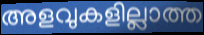
അളവുകളില്ലാത്ത